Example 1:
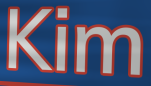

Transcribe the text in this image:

Kim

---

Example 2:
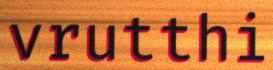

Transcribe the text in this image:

vrutthi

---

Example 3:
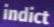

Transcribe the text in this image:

indict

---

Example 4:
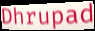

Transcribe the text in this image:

Dhrupad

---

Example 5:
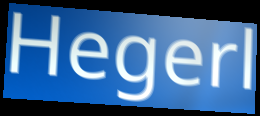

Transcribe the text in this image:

Hegerl